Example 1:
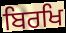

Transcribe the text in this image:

ਬਿਰਖਿ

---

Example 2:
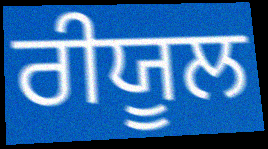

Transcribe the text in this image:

ਰੀਯੂਲ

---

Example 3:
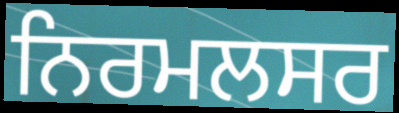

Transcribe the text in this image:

ਨਿਰਮਲਸਰ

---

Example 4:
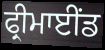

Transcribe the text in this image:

ਫ੍ਰੀਮਾਈਂਡ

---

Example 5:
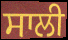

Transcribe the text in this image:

ਸਾਲੀ